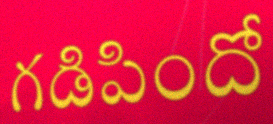
గడిపిందో